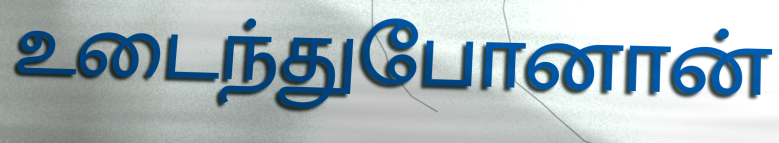
உடைந்துபோனான்